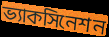
ভ্যাকসিনেশন